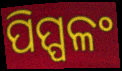
ପିପ୍ପଳଂ